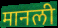
मानली